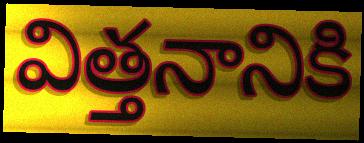
విత్తనానికి